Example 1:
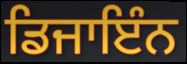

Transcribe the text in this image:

ਡਿਜਾਇੰਨ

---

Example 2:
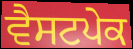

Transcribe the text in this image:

ਵੈਸਟਪੇਕ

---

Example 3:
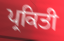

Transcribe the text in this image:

ਪ੍ਰਕਿਤੀ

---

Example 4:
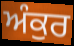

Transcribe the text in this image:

ਅੰਕੁਰ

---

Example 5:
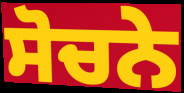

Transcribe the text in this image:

ਸੋਚਨੇ